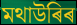
মথাউৰিৰ